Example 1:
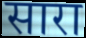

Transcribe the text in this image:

सारा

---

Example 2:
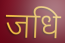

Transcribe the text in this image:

जधि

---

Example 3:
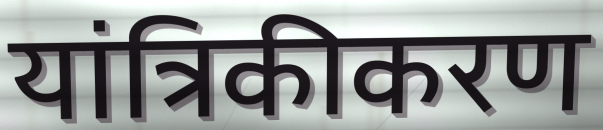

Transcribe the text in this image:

यांत्रिकीकरण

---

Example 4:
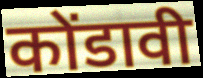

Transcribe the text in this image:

कोंडावी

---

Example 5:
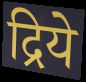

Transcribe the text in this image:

द्रिये